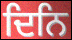
ਦਿਨਿ